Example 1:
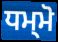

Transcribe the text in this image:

ਧਮ੍ਮੋ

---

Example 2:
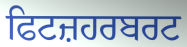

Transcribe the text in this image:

ਫਿਟਜ਼ਹਰਬਰਟ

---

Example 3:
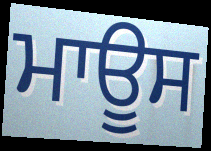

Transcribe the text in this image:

ਮਾਊਸ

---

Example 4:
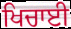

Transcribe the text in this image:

ਖਿਚਾਈ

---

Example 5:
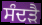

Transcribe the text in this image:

ਸੰਦੜੈ